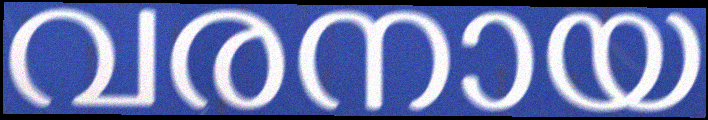
വരനായ